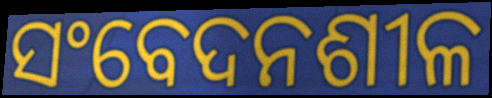
ସଂବେଦନଶୀଳ